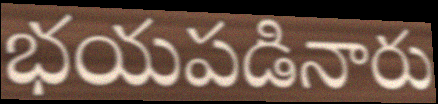
భయపడినారు